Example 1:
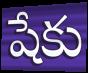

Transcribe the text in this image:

షేకు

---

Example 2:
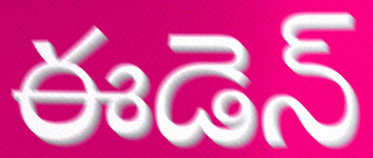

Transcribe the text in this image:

ఈడెన్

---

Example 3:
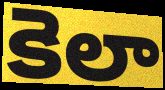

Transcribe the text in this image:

కెలా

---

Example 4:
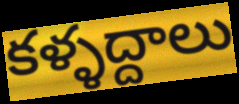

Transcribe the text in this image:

కళ్ళద్దాలు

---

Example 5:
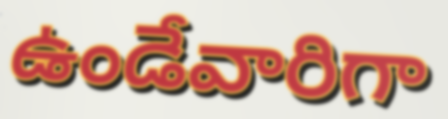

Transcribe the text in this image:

ఉండేవారిగా